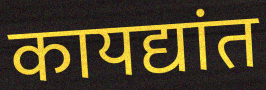
कायद्यांत